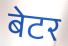
बेटर